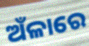
ଅଁଳାରେ